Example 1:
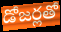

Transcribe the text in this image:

డోజర్లతో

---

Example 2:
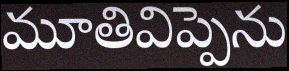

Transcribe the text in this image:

మూతివిప్పెను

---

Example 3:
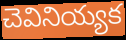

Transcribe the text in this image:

చెవినియ్యక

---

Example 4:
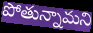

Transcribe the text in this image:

పోతున్నామని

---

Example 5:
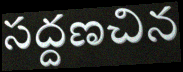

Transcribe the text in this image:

సద్దణచిన